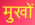
मुखों